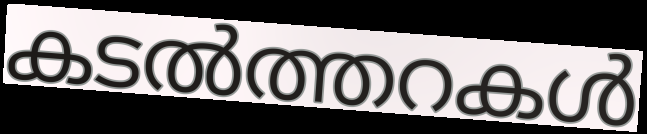
കടൽത്തറകൾ